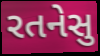
રતનેસુ